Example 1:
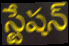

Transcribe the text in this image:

స్టేషన్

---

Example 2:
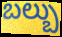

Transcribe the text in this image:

బల్బు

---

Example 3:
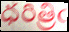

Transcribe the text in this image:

ధరిత్రిఁ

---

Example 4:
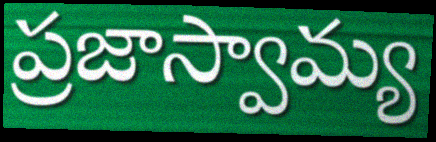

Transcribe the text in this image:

ప్రజాస్వామ్య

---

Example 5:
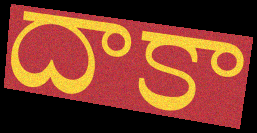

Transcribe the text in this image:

దాకా